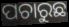
ପଚାରୁଛ